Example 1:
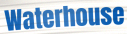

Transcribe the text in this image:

Waterhouse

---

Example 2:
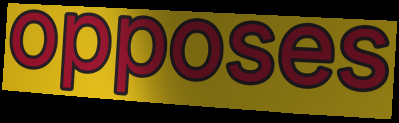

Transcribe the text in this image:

opposes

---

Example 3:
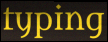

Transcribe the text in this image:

typing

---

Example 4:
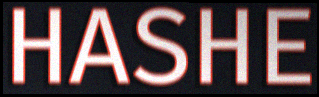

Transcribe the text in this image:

HASHE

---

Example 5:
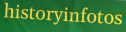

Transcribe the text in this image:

historyinfotos